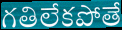
గతిలేకపోతే